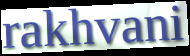
rakhvani